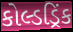
કોલ્ડડ્રિંક